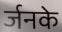
र्जनके